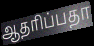
ஆதரிப்பதா